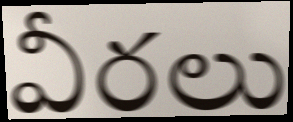
వీరలు